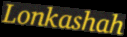
Lonkashah